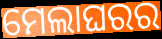
ମେଲାଘରର